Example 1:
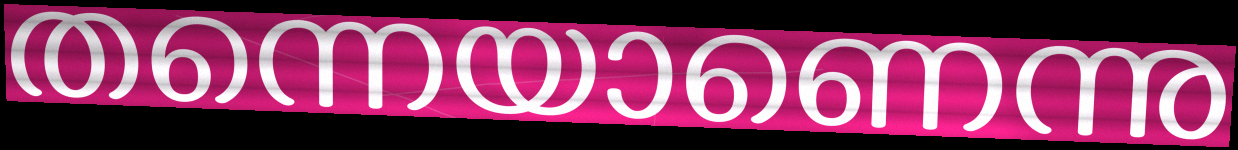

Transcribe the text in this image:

തന്നെയാണെന്നു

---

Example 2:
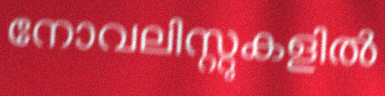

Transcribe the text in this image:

നോവലിസ്റ്റുകളിൽ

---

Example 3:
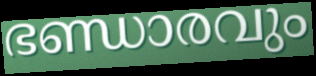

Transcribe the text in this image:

ഭണ്ഡാരവും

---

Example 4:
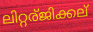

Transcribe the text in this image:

ലിറ്റര്ജിക്കല്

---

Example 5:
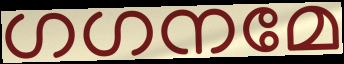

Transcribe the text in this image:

ഗഗനമേ